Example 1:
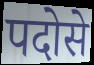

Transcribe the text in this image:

पदोसे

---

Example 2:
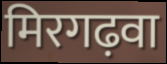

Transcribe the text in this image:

मिरगढ़वा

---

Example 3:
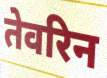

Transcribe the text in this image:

तेवरिन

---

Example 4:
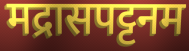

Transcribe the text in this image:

मद्रासपट्टनम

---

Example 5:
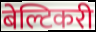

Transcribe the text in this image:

बेल्टिकरी